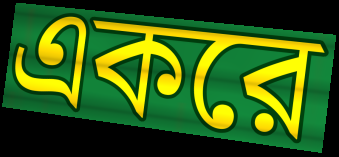
একরে